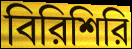
বিরিশিরি